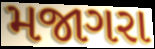
મજાગરા